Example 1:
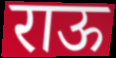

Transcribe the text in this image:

राऊ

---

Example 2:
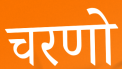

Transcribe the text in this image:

चरणो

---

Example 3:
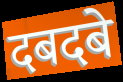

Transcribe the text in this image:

दबदबे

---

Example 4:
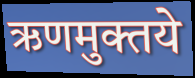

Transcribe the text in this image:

ऋणमुक्तये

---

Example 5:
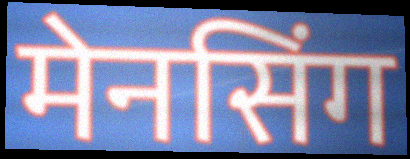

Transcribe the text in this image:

मेनसिंग